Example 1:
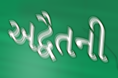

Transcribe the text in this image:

અદ્વૈતની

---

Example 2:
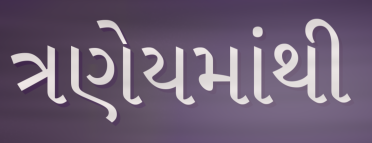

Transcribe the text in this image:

ત્રણેયમાંથી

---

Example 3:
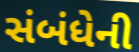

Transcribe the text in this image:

સંબંધેની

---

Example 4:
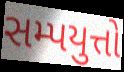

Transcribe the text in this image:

સમ્પયુત્તો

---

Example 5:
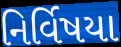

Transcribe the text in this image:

નિર્વિષયા